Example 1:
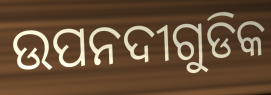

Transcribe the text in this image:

ଉପନଦୀଗୁଡିକ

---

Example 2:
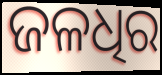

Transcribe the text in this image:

ଜଳଧିର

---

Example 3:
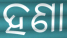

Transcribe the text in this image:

ହଣା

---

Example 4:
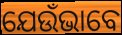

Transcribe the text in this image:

ଯେଉଁଭାବେ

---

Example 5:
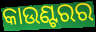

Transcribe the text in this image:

କାଉଣ୍ଟରର